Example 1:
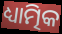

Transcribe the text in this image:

ଧ୍ୟାତ୍ମିକ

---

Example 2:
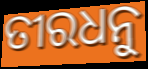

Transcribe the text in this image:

ତୀରଧନୁ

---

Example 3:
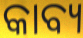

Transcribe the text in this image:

କାବ୍ୟ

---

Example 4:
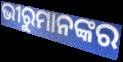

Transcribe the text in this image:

ଭୀରୁମାନଙ୍କର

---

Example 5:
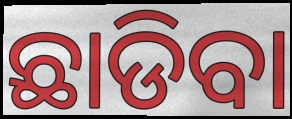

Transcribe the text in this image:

ଛାଡିବା